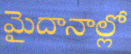
మైదానాల్లో